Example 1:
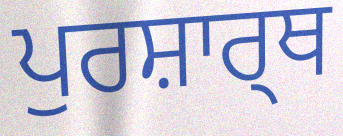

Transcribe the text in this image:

ਪੁਰਸ਼ਾਰ੍ਥ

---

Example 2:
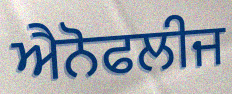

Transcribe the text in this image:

ਐਨੋਫਲੀਜ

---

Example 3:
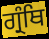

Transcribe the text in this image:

ਗ੍ਰੰਥਿ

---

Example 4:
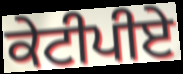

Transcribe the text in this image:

ਕੇਟੀਪੀਏ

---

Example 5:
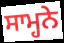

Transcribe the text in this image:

ਸਾਮ੍ਹਨੇ